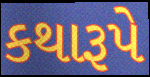
કથારૂપે